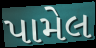
પામેલ